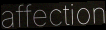
affection